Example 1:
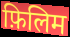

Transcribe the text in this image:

फ़िलिम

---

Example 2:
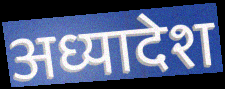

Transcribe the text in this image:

अध्यादेश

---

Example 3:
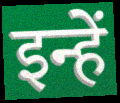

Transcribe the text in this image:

इन्हें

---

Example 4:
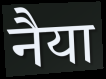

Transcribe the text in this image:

नैया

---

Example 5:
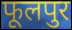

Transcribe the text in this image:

फूलपुर